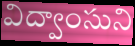
విద్వాంసుని